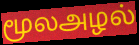
மூலஅழல்